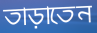
তাড়াতেন